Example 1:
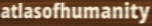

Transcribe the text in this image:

atlasofhumanity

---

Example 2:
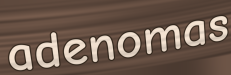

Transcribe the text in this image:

adenomas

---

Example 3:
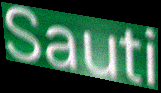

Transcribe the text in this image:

Sauti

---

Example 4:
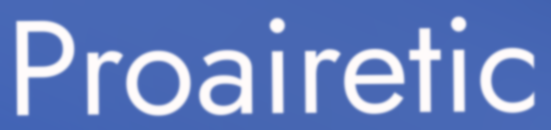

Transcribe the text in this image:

Proairetic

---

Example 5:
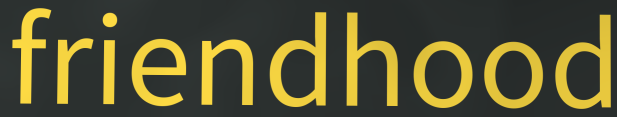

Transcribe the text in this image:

friendhood